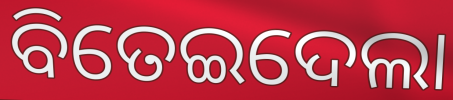
ବିତେଇଦେଲା